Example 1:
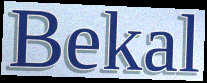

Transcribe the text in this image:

Bekal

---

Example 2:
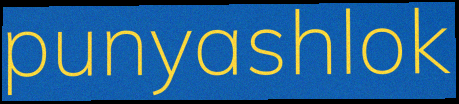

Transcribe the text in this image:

punyashlok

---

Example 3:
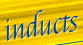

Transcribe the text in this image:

inducts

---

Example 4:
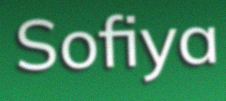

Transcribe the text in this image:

Sofiya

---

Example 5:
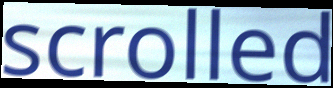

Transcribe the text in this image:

scrolled